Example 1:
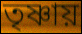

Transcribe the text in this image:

তৃষ্ণায়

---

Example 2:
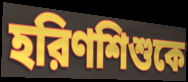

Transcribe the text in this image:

হরিণশিশুকে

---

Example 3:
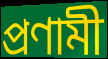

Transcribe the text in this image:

প্রণামী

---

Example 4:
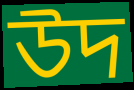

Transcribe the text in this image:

উদ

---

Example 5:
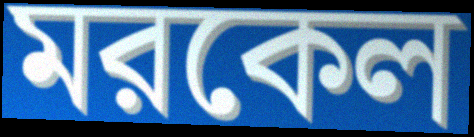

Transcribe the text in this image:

মরকেল